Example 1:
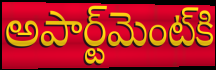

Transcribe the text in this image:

అపార్ట్‌మెంట్‌కి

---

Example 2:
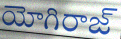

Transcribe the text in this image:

యోగిరాజ్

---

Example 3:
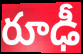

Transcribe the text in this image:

రూఢీ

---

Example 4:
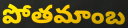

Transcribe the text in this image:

పోతమాంబ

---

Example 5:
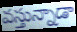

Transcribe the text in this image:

వస్తున్నాడా